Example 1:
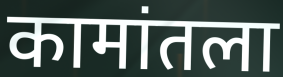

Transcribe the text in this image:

कामांतला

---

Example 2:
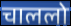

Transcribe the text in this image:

चाललो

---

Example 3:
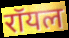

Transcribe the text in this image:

रॉयल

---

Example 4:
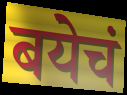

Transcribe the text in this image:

बयेचं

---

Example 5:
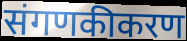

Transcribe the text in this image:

संगणकीकरण